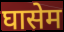
घासेम